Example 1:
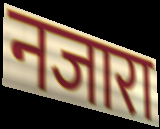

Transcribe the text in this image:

नजारा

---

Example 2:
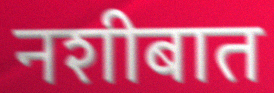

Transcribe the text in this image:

नशीबात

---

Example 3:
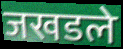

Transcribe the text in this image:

जखडले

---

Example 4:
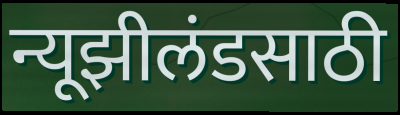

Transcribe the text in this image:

न्यूझीलंडसाठी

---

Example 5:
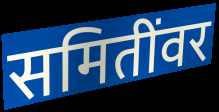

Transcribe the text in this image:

समितींवर